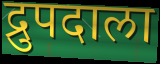
द्रुपदाला